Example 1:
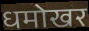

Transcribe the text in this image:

धमोखर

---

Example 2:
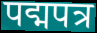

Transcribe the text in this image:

पद्मपत्र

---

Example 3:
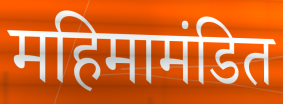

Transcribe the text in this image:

महिमामंडित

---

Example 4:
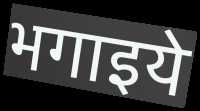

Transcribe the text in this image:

भगाइये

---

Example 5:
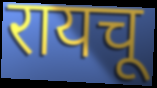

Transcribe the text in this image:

रायचू